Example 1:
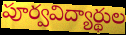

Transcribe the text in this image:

పూర్వవిద్యార్థుల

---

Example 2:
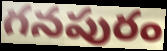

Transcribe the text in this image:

గనపురం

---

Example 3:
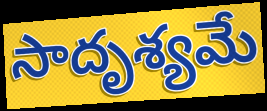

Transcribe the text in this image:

సాదృశ్యమే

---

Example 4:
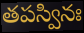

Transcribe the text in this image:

తపస్వినః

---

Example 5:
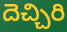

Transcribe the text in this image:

దెచ్చిరి